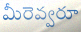
మీరెవ్వరూ